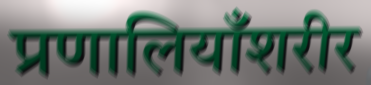
प्रणालियाँशरीर